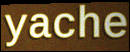
yache